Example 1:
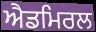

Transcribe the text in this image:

ਐਡਮਿਰਲ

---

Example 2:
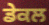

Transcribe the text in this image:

ਡੇਕਲ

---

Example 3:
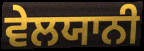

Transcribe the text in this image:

ਵੇਲਯਾਨੀ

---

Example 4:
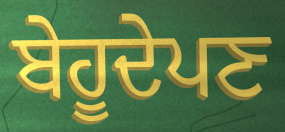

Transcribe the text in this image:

ਬੇਹੂਦੇਪਣ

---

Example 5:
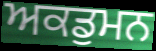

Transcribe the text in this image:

ਅਕਡੁਮਨ